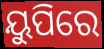
ୟୁପିରେ